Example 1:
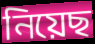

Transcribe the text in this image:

নিয়েছ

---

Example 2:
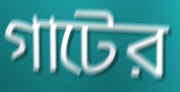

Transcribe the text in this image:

গাটের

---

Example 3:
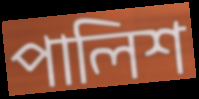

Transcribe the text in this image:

পালিশ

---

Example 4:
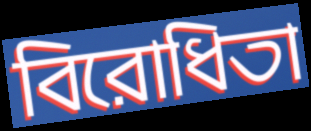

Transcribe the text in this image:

বিরোধিতা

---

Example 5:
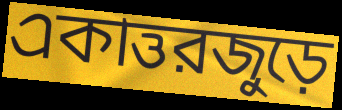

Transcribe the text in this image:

একাত্তরজুড়ে